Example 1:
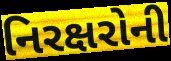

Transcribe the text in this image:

નિરક્ષરોની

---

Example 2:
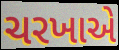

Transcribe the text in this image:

ચરખાએ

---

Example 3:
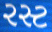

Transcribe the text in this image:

રસ્ટ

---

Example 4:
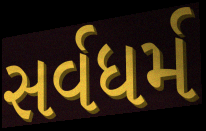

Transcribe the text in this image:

સર્વધર્મ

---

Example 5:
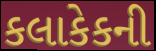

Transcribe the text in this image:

કલાકેકની